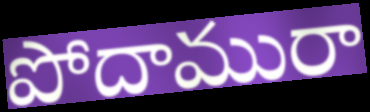
పోదామురా